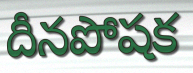
దీనపోషక